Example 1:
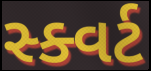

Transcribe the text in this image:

સ્ક્વર્ટ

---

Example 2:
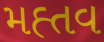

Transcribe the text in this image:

મહ્તવ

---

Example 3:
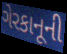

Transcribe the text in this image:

ગેરકાનૂની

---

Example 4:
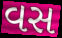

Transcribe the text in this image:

વસ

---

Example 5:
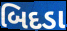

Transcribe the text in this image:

બિદડા